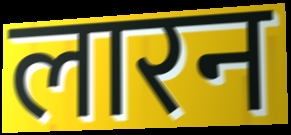
लारन